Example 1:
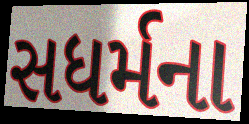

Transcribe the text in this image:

સધર્મના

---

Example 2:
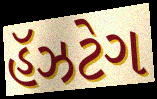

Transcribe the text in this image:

હૅઝટેગ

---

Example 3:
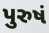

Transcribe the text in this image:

પુરુષં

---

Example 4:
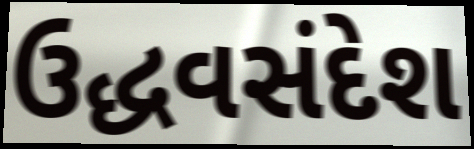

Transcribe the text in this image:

ઉદ્ધવસંદેશ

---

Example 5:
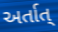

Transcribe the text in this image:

અર્તાત્